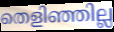
തെളിഞ്ഞില്ല